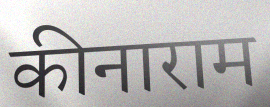
कीनाराम